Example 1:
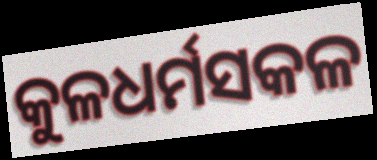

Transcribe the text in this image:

କୁଳଧର୍ମସକଳ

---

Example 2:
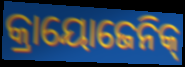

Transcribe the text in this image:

କ୍ରାୟୋଜେନିକ୍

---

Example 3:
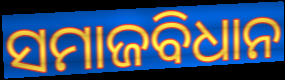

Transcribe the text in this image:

ସମାଜବିଧାନ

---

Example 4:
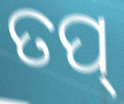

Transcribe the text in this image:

ତପ୍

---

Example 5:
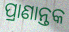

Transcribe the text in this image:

ପ୍ରାଣାନ୍ତକ